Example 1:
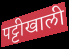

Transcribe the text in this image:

पट्टीखाली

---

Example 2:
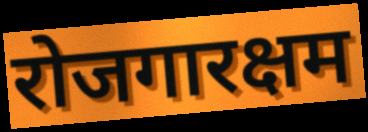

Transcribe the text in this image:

रोजगारक्षम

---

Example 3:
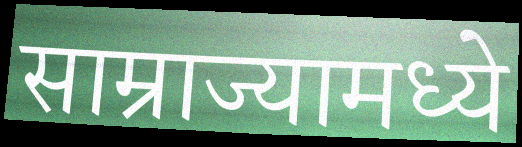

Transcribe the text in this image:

साम्राज्यामध्ये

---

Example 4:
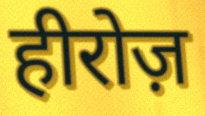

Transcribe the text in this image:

हीरोज़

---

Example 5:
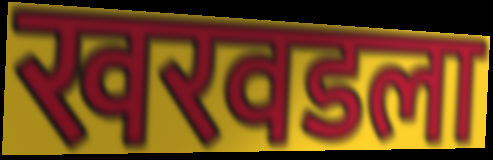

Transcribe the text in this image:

खरवडला